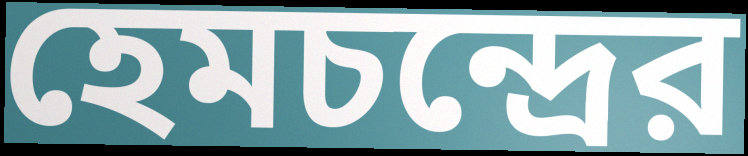
হেমচন্দ্রের